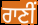
ਰਾਣੀਂ